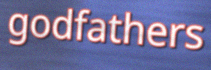
godfathers